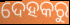
ଦେହକରୁ